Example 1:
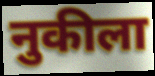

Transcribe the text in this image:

नुकीला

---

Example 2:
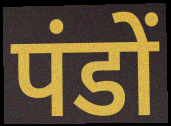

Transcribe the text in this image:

पंडों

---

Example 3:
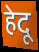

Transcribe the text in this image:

हेदू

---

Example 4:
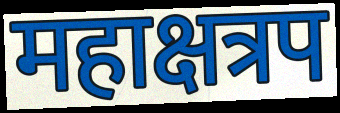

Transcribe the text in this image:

महाक्षत्रप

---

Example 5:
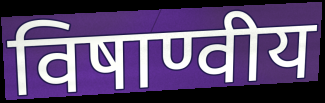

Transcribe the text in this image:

विषाण्वीय